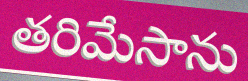
తరిమేసాను